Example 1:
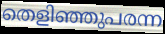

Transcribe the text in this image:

തെളിഞ്ഞുപരന്ന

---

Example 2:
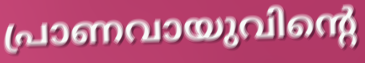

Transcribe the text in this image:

പ്രാണവായുവിന്റെ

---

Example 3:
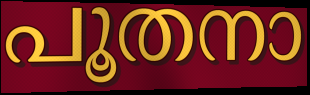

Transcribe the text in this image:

പൂതനാ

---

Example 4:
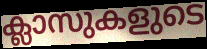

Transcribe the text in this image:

ക്ലാസുകളുടെ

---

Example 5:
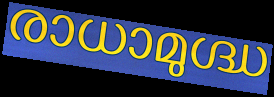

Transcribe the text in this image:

രാധാമുഗ്ദ്ധ